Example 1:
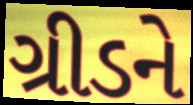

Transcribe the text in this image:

ગ્રીડને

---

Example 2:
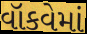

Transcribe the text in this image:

વૉકવેમાં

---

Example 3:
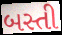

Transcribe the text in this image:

બસ્તી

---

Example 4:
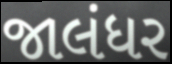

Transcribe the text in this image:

જાલંધર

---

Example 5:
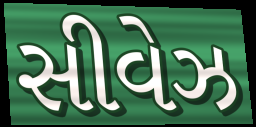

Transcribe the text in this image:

સીવેઝ